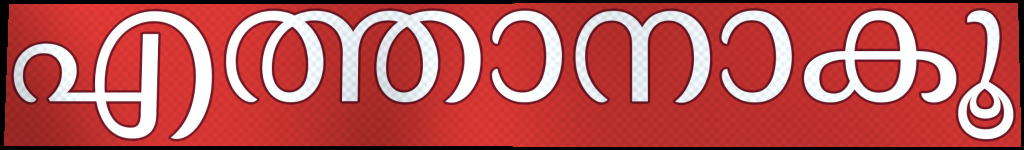
എത്താനാകൂ